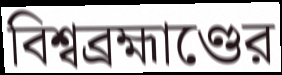
বিশ্বব্রহ্মাণ্ডের